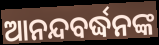
ଆନନ୍ଦବର୍ଦ୍ଧନଙ୍କ